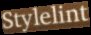
Stylelint